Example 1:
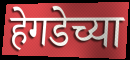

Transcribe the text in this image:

हेगडेच्या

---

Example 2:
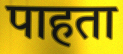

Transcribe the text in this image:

पाहता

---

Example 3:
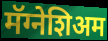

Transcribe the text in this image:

मॅग्नेशिअम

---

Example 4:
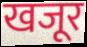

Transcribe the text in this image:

खजूर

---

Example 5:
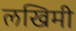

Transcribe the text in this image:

लखिमी